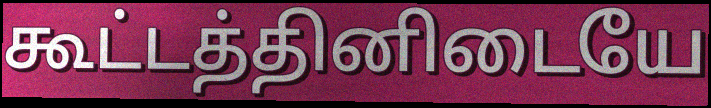
கூட்டத்தினிடையே